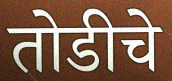
तोडीचे